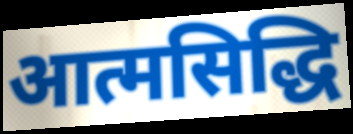
आत्मसिद्धि